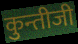
कुन्तीजी